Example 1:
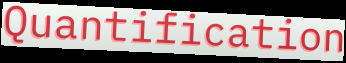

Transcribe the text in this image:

Quantification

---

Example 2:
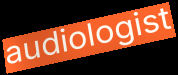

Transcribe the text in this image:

audiologist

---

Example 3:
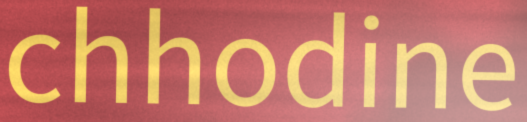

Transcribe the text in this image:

chhodine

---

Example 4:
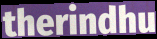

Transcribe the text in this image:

therindhu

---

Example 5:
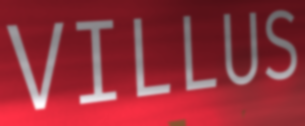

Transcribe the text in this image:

VILLUS